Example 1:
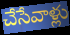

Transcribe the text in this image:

చేసేవాళ్లు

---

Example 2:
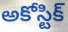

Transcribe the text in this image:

అకోస్టిక్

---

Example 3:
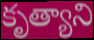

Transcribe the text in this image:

కృత్యాని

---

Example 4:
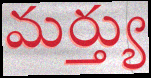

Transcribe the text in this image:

మర్త్యు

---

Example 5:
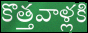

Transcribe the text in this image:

కొత్తవాళ్లకి